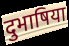
दुभाषिया